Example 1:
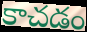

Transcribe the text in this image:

కాచడం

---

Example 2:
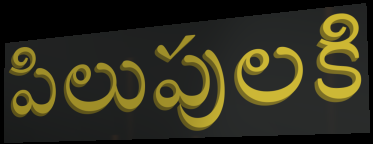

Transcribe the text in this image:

పిలుపులకి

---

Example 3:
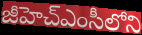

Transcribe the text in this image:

జీహెచ్ఎంసీలోని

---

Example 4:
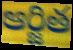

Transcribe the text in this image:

ఆర్జిత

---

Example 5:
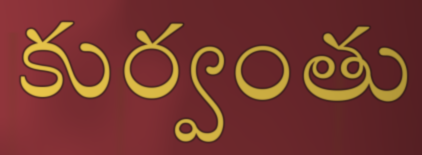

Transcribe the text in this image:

కుర్వంతు